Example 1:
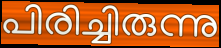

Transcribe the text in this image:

പിരിച്ചിരുന്നു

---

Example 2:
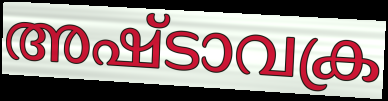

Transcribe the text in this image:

അഷ്ടാവക്ര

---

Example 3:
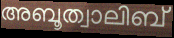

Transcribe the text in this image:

അബൂത്വാലിബ്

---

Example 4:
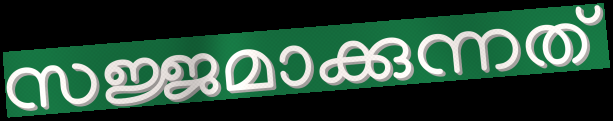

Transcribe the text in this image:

സജ്ജമാക്കുന്നത്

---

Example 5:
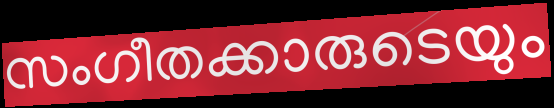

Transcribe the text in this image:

സംഗീതക്കാരുടെയും